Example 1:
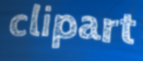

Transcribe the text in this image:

clipart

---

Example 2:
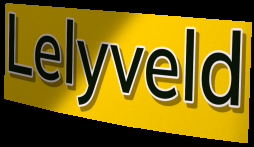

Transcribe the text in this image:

Lelyveld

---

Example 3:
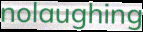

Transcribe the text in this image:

nolaughing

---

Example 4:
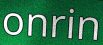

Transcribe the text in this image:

onrin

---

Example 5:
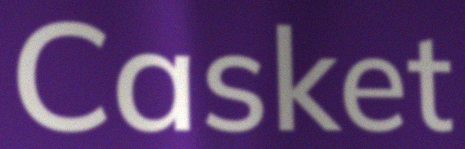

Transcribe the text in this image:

Casket